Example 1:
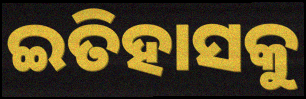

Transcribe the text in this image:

ଇତିହାସକୁ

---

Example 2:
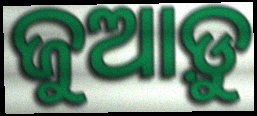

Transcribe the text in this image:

ଜୁଆଡ଼ୁ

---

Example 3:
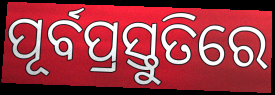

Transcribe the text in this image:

ପୂର୍ବପ୍ରସ୍ତୁତିରେ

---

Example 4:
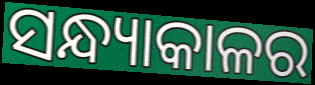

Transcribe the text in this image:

ସନ୍ଧ୍ୟାକାଳର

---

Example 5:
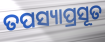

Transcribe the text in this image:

ତପସ୍ୟାପ୍ରସୂତ